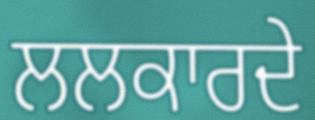
ਲਲਕਾਰਦੇ